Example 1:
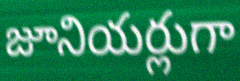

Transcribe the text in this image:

జూనియర్లుగా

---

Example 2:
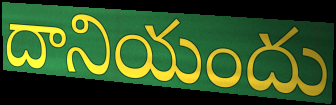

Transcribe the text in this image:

దానియందు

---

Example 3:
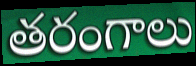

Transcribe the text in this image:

తరంగాలు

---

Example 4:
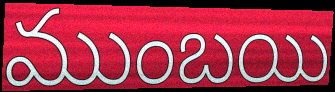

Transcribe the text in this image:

ముంబయి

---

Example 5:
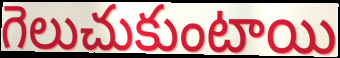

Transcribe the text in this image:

గెలుచుకుంటాయి